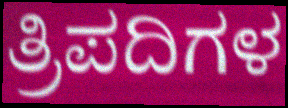
ತ್ರಿಪದಿಗಳ